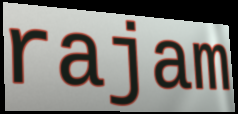
rajam